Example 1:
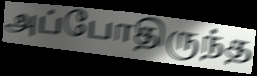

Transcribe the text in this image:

அப்போதிருந்த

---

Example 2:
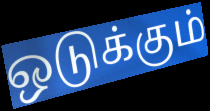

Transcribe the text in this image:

ஒடுக்கும்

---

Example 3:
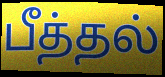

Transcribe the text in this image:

பீத்தல்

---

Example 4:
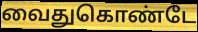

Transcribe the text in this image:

வைதுகொண்டே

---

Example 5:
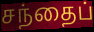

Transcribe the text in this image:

சந்தைப்